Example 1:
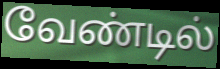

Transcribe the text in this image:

வேண்டில்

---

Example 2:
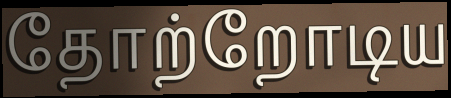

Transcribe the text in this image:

தோற்றோடிய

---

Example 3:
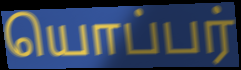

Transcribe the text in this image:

யொப்பர்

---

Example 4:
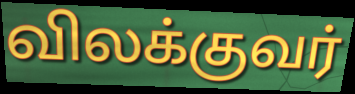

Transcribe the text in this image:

விலக்குவர்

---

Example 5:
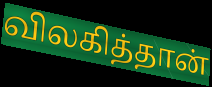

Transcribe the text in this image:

விலகித்தான்